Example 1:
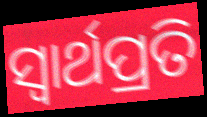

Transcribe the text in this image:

ସ୍ୱାର୍ଥପ୍ରତି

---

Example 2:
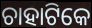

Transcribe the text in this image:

ଚାହାଟିକେ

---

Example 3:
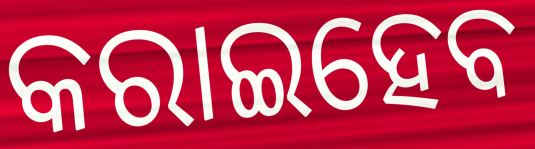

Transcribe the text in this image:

କରାଇହେବ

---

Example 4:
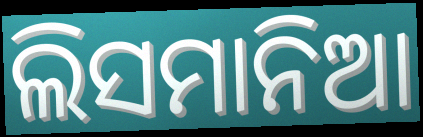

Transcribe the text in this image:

ଲିସମାନିଆ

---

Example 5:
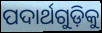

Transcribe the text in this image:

ପଦାର୍ଥଗୁଡ଼ିକୁ